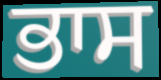
ਭਾਸ